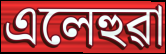
এলেহুৱা